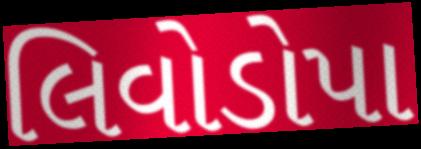
લિવોડોપા